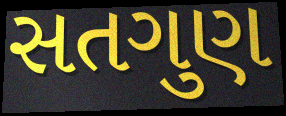
સતગુણ